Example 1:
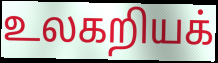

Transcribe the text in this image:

உலகறியக்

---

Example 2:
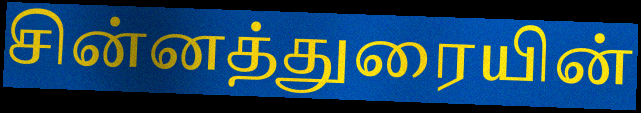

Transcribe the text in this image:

சின்னத்துரையின்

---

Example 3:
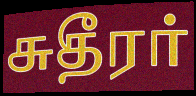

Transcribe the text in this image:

சுதீரர்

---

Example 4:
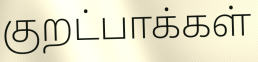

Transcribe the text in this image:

குறட்பாக்கள்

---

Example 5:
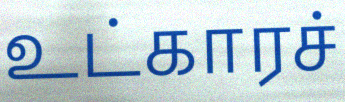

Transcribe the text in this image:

உட்காரச்